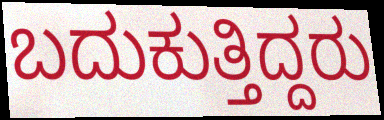
ಬದುಕುತ್ತಿದ್ದರು